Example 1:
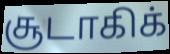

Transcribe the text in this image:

சூடாகிக்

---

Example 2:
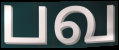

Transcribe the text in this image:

பவ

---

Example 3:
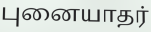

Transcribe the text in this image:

புனையாதர்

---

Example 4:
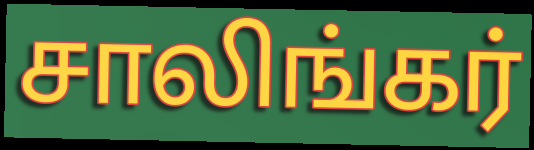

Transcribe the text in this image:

சாலிங்கர்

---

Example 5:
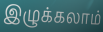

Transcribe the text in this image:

இழுக்கலாம்